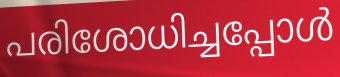
പരിശോധിച്ചപ്പോൾ